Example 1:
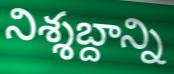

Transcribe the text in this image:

నిశ్శబ్దాన్ని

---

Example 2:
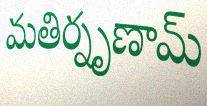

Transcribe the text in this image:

మతిర్నృణామ్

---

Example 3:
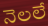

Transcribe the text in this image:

నెలలే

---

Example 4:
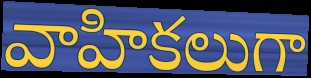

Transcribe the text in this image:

వాహికలుగా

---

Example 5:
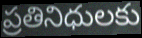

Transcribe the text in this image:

ప్రతినిధులకు